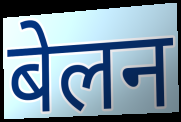
बेलन